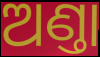
ଅଣ୍ତା